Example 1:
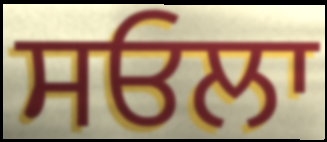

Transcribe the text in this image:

ਸਓਲਾ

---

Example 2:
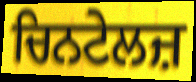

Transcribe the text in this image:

ਚਿਨਟੇਲਜ਼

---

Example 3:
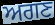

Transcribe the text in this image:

ਅਗਣ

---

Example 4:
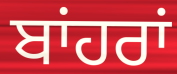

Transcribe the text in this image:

ਬਾਂਹਰਾਂ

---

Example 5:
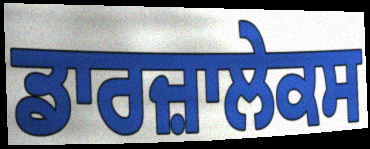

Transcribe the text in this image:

ਡਾਰਜ਼ਾਲੇਕਸ